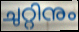
ചുറ്റിനും